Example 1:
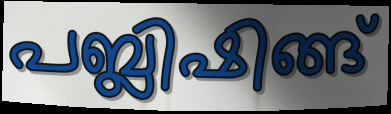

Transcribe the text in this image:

പബ്ലിഷിങ്ങ്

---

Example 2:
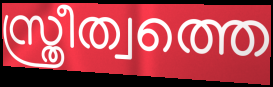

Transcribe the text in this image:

സ്ത്രീത്വത്തെ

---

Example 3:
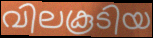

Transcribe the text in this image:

വിലകൂടിയ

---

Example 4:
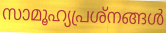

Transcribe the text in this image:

സാമൂഹ്യപ്രശ്നങ്ങൾ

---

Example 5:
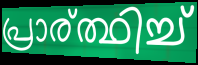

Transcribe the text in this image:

പ്രാര്ത്ഥിച്ച്